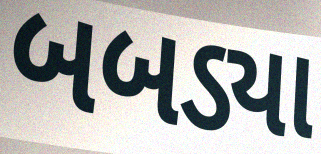
બબડ્યા